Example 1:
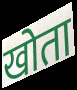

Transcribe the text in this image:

खोता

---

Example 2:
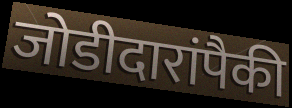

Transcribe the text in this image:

जोडीदारांपैकी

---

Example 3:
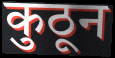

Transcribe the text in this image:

कुठून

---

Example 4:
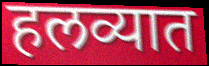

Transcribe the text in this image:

हलव्यात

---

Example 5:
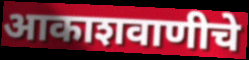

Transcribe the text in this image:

आकाशवाणीचे